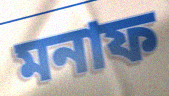
মনাফ